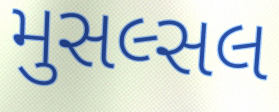
મુસલ્સલ